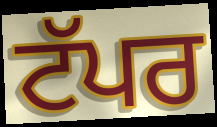
ਟੱਪਰ